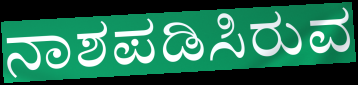
ನಾಶಪಡಿಸಿರುವ